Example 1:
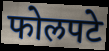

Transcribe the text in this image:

फोलपटे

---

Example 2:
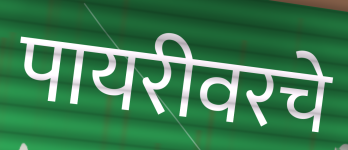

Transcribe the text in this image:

पायरीवरचे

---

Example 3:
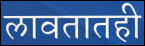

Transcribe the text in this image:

लावतातही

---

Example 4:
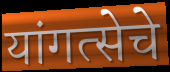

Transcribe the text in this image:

यांगत्सेचे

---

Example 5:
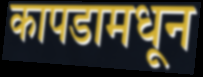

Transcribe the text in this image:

कापडामधून